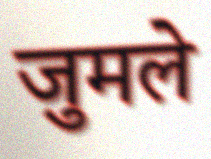
जुमले